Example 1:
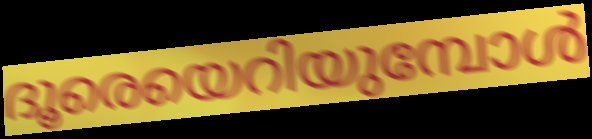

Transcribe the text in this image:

ദൂരെയെറിയുമ്പോൾ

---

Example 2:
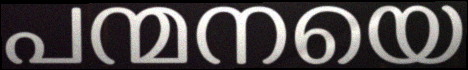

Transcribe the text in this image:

പന്മനയെ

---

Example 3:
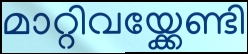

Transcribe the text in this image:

മാറ്റിവയ്ക്കേണ്ടി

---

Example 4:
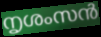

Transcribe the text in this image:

നൃശംസൻ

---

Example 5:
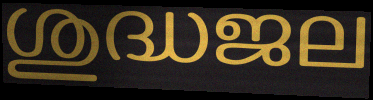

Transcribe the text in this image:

ശുദ്ധജല